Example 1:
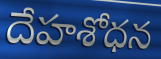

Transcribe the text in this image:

దేహశోధన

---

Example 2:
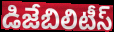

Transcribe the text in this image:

డిజేబిలిటీస్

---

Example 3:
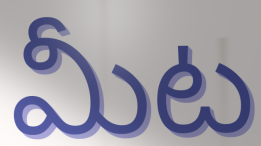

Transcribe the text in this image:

మీట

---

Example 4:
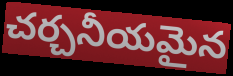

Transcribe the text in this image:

చర్చనీయమైన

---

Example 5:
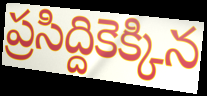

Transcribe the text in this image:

ప్రసిద్దికెక్కిన